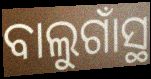
ବାଲୁଗାଁସ୍ଥ